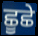
ਛੂਛੇ